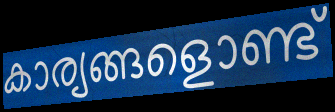
കാര്യങ്ങളൊണ്ട്